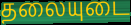
தலையுடை